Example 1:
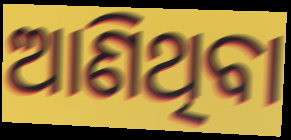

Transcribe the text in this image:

ଆଣିଥିବା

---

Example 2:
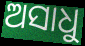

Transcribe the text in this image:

ଅସାଧୁ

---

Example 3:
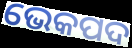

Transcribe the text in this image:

ଭେକପଦ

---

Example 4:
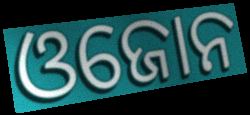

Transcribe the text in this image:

ଓଜୋନ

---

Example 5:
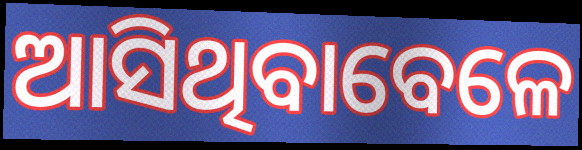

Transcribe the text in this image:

ଆସିଥିବାବେଳେ